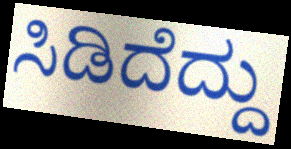
ಸಿಡಿದೆದ್ದು